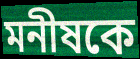
মনীষকে